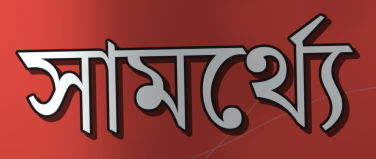
সামর্থ্যে